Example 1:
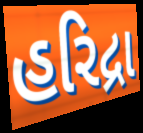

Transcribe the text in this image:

હરિદ્રા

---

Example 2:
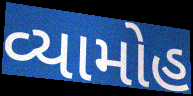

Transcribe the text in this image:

વ્યામોહ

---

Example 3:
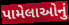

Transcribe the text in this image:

પામેલાઓનું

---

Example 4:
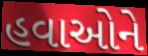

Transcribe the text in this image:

હવાઓને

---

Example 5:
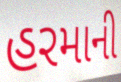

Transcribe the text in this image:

હરમાની